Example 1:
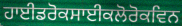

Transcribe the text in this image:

ਹਾਈਡਰੋਕਸਾਈਕਲੋਰੋਕਵਿਨ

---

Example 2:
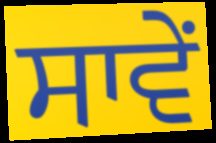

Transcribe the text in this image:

ਸਾਵੇਂ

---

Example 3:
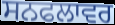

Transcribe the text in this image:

ਸਨਫਲਾਵਰ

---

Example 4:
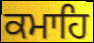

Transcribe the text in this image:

ਕਮਾਹਿ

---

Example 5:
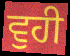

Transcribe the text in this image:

ਵੁਹੀ